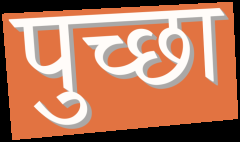
पुच्छा